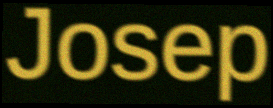
Josep